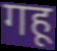
गहू